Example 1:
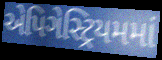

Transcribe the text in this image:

એપિગેસ્ટ્રિયમમાં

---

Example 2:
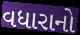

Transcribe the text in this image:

વધારાનો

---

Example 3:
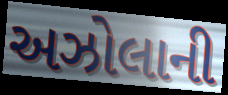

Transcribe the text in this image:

અઝોલાની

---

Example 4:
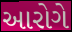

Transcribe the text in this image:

આરોગે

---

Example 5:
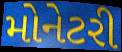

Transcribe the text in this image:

મોનેટરી